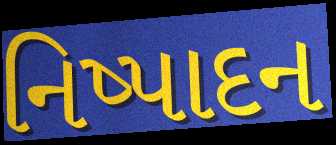
નિષ્પાદન